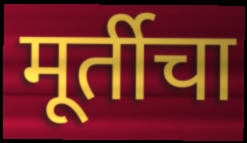
मूर्तीचा